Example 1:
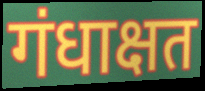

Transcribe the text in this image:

गंधाक्षत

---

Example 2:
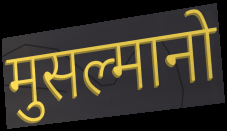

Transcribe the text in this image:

मुसल्मानो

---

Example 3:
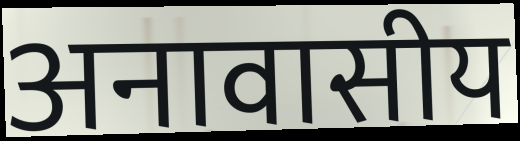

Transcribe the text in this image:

अनावासीय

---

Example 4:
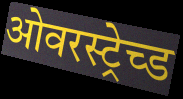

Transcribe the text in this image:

ओवरस्ट्रेच्ड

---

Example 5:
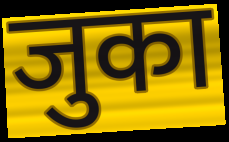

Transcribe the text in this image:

जुका